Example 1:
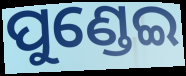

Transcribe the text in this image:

ପୁଣ୍ଡେଇ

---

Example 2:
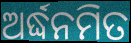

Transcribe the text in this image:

ଅର୍ଦ୍ଧନମିତ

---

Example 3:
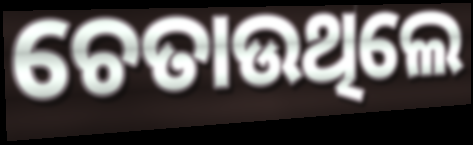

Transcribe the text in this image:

ଚେତାଉଥିଲେ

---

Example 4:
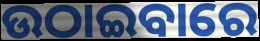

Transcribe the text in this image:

ଉଠାଇବାରେ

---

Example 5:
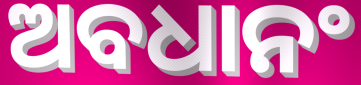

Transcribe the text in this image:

ଅବଧାନଂ